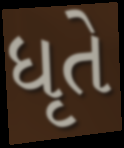
ધૃતે